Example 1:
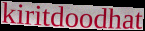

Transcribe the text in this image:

kiritdoodhat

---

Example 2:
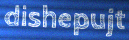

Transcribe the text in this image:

dishepujt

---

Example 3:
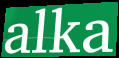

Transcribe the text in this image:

alka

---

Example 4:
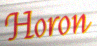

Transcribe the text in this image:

Horon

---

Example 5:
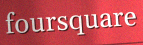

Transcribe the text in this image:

foursquare